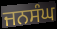
ਜਨਸੰਘ